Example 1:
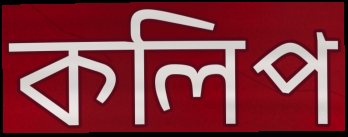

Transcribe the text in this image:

কলিপ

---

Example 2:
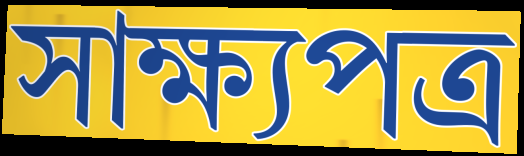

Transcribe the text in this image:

সাক্ষ্যপত্র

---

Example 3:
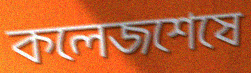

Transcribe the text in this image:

কলেজশেষে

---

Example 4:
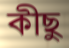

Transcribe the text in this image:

কীছু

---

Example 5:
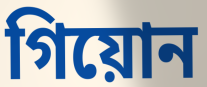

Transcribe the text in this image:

গিয়োন